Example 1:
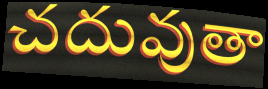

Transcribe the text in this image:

చదువుతా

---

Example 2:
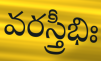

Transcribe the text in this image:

వరస్త్రీభిః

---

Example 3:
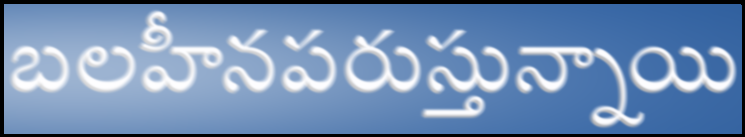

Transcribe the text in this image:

బలహీనపరుస్తున్నాయి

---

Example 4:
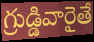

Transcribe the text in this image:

గ్రుడ్డివారైతే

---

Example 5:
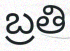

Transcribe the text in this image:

బ్రతి